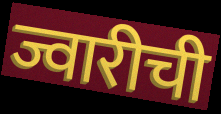
ज्वारीची